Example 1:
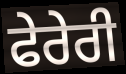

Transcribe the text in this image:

ਫੇਰੇਰੀ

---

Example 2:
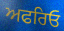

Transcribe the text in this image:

ਅਫਰਿਓ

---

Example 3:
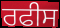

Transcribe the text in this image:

ਰਫੀਸ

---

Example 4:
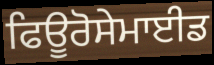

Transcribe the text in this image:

ਫਿਊਰੋਸੇਮਾਈਡ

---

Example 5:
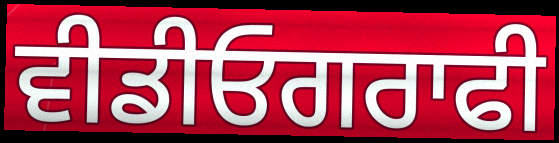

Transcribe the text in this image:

ਵੀਡੀਓਗਰਾਫੀ